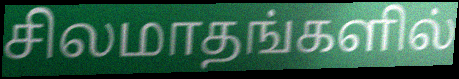
சிலமாதங்களில்